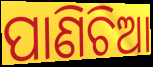
ପାଣିଚିଆ